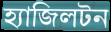
হ্যাজিলটন